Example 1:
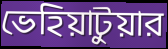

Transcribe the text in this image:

ভেহিয়াটুয়ার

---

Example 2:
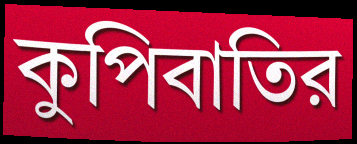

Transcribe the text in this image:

কুপিবাতির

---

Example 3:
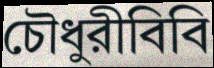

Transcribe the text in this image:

চৌধুরীবিবি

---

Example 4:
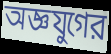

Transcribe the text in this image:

অজ্ঞযুগের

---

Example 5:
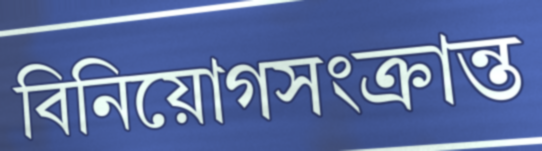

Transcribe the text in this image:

বিনিয়োগসংক্রান্ত